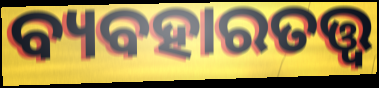
ବ୍ୟବହାରତତ୍ତ୍ବ